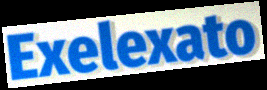
Exelexato